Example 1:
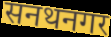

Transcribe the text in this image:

सनथनगर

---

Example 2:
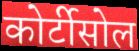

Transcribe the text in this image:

कोर्टीसोल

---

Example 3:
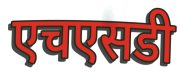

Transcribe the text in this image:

एचएसडी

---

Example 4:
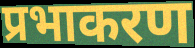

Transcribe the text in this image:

प्रभाकरण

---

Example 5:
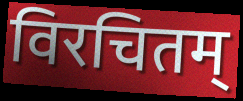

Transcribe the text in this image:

विरचितम्